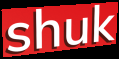
shuk